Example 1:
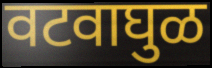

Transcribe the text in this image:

वटवाघुळ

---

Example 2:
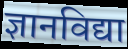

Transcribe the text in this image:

ज्ञानविद्या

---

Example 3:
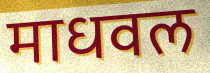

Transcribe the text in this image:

माधवल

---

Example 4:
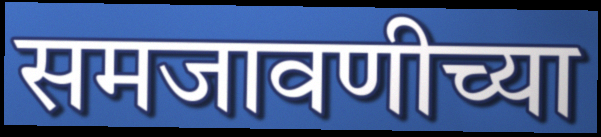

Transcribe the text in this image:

समजावणीच्या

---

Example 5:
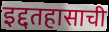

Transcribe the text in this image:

इद्दतहासाची